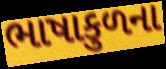
ભાષાકુળના